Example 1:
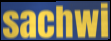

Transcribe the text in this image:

sachwi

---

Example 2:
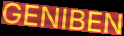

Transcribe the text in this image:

GENIBEN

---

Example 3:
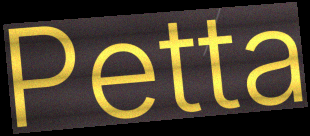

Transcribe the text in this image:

Petta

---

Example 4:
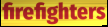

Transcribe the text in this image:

firefighters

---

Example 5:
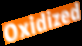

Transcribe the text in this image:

Oxidized